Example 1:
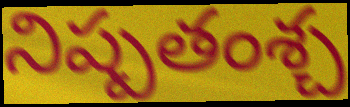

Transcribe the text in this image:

నిష్పతంశ్చ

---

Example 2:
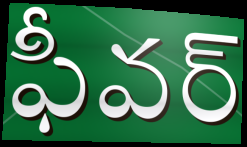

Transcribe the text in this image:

ఫీవర్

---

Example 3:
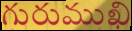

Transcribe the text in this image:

గురుముఖి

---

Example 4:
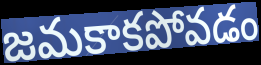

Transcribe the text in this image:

జమకాకపోవడం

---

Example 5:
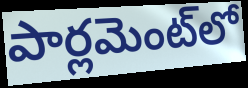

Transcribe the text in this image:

పార్లమెంట్‌లో